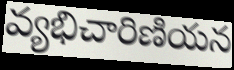
వ్యభిచారిణియన